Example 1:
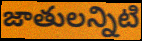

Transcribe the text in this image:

జాతులన్నిటి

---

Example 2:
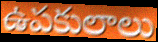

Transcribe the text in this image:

ఉపకులాలు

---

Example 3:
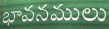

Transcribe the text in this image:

భావనములు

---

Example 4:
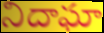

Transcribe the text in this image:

నిదాఘా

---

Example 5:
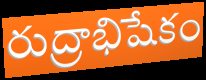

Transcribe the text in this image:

రుద్రాభిషేకం